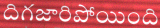
దిగజారిపోయింది